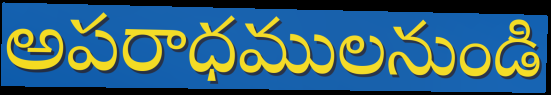
అపరాధములనుండి